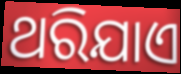
ଥରିଯାଏ